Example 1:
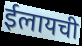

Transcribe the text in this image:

ईलायची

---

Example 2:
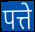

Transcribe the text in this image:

पत्ते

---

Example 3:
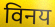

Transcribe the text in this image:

विनय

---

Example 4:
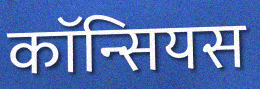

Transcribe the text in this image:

कॉन्सियस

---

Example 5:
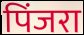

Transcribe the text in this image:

पिंजरा